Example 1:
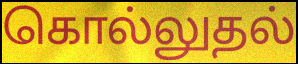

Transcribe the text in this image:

கொல்லுதல்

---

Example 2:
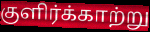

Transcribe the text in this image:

குளிர்க்காற்று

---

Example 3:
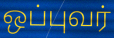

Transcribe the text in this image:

ஒப்புவர்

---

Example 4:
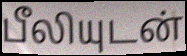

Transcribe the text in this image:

பீலியுடன்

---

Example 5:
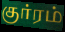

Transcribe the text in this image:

குர்ரம்